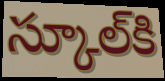
స్కూల్‌కి